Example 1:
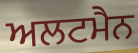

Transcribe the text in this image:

ਅਲਟਮੈਨ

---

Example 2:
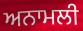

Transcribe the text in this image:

ਅਨਾਮਲੀ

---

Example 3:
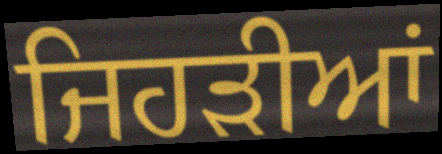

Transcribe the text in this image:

ਜਿਹੜੀਆਂ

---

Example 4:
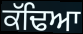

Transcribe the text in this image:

ਕੱਢਿਆ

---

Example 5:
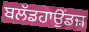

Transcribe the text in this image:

ਬਲੱਡਹਾਉਂਡਜ਼